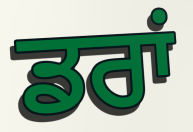
ਡਰਾਂ